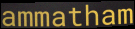
ammatham